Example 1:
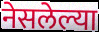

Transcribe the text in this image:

नेसलेल्या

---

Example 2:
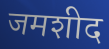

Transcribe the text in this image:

जमशीद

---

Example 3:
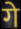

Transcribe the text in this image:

गे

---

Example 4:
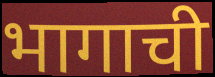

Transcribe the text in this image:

भागाची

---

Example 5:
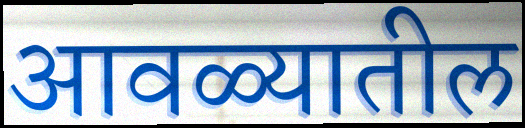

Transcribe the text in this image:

आवळ्यातील